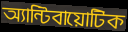
অ্যান্টিবায়োটিক